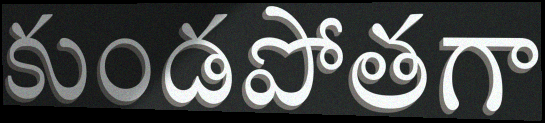
కుండపోతగా